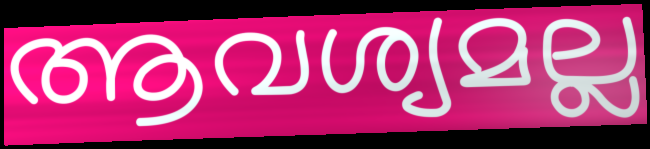
ആവശ്യമല്ല